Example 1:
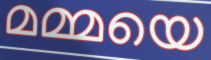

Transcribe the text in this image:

മമ്മയെ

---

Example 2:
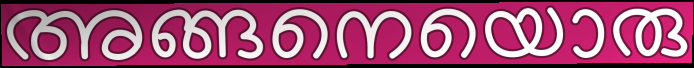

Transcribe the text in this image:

അങ്ങനെയൊരു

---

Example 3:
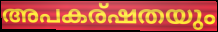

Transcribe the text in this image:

അപകര്ഷതയും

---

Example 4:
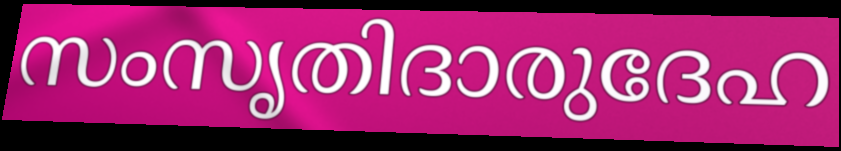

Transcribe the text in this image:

സംസൃതിദാരുദേഹ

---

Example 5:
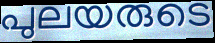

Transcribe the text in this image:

പുലയരുടെ